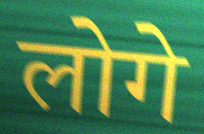
लोगे